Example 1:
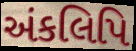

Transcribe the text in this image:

અંકલિપિ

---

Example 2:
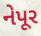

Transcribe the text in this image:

નેપૂર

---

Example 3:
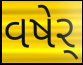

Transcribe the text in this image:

વષેર્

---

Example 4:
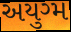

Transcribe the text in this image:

અયુગ્મ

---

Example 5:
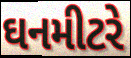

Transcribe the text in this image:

ઘનમીટરે